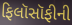
ફિલૉસૉફીની